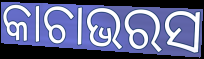
କାଚାଭରସ